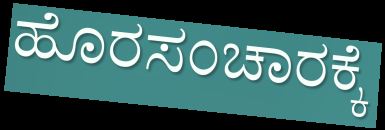
ಹೊರಸಂಚಾರಕ್ಕೆ